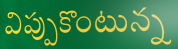
విప్పుకొంటున్న